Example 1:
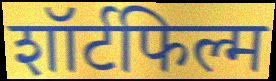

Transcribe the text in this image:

शॉर्टफिल्म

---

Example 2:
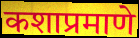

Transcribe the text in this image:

कशाप्रमाणे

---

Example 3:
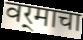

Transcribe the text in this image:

वर्माचा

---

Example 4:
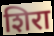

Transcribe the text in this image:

शिरा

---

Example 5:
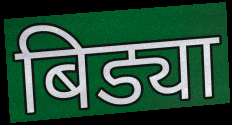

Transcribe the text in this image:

बिड्या